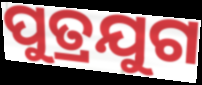
ପୁତ୍ରଯୁଗ